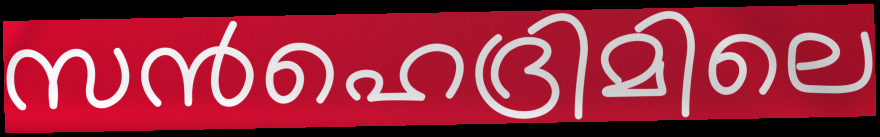
സൻഹെദ്രിമിലെ